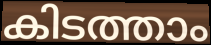
കിടത്താം